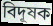
বিদূষক